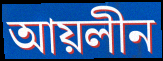
আয়লীন